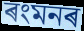
ৰংমনৰ